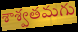
శాశ్వతమగు